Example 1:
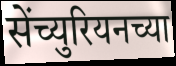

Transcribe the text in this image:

सेंच्युरियनच्या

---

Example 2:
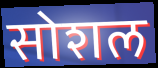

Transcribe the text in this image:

सोशल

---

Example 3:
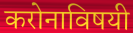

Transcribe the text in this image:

करोनाविषयी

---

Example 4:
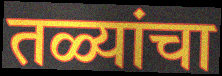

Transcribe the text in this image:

तळ्यांचा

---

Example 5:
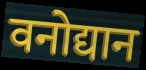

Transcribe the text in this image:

वनोद्यान